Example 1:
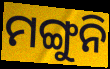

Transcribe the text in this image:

ମଙ୍ଗୁନି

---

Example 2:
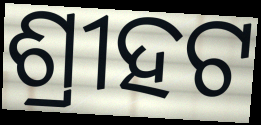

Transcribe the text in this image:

ଶ୍ରୀହଟ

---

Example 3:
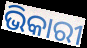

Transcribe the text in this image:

ଭିକାରୀ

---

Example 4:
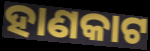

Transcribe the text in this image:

ହାଣକାଟ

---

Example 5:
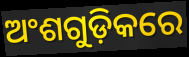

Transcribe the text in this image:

ଅଂଶଗୁଡ଼ିକରେ